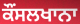
ਕੌਂਸਲਖਾਨਾ